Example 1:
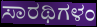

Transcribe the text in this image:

ಸಾರಥಿಗಳಂ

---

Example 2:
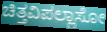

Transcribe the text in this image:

ಚಿತ್ತವಿಪಲ್ಲಾಸೋ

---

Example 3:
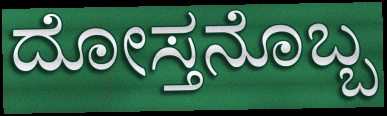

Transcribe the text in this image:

ದೋಸ್ತನೊಬ್ಬ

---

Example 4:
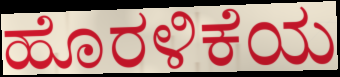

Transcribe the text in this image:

ಹೊರಳಿಕೆಯ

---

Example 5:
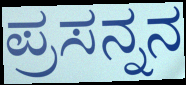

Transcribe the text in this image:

ಪ್ರಸನ್ನನ